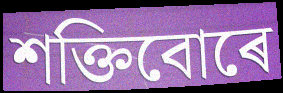
শক্তিবোৰে